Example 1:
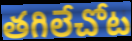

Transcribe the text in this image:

తగిలేచోట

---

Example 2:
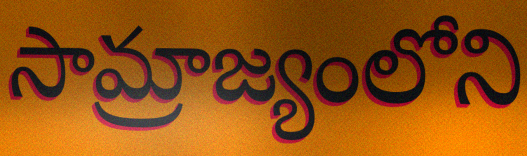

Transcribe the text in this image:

సామ్రాజ్యంలోని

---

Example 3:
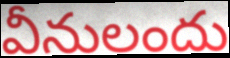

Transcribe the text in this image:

వీనులందు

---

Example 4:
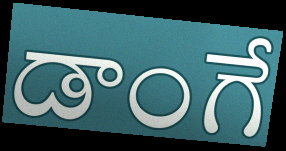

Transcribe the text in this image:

డాంగే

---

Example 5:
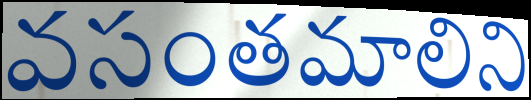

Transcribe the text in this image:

వసంతమాలిని